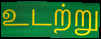
உடற்று